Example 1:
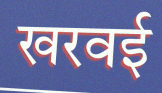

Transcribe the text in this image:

खरवई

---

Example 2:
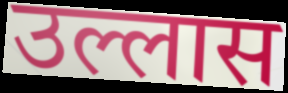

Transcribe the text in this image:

उल्‍लास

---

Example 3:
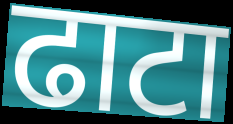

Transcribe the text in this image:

ढाटा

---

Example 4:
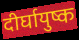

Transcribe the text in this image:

दीर्घायुष्क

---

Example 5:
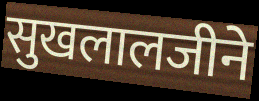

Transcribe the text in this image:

सुखलालजीने